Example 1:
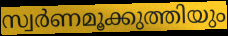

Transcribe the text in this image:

സ്വർണമൂക്കുത്തിയും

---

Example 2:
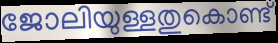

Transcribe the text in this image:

ജോലിയുള്ളതുകൊണ്ട്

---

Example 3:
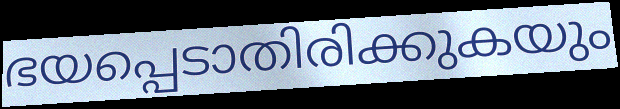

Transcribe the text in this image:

ഭയപ്പെടാതിരിക്കുകയും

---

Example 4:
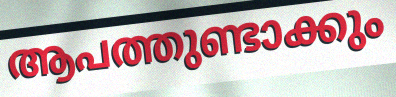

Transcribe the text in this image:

ആപത്തുണ്ടാക്കും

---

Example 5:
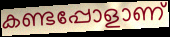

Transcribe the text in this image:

കണ്ടപ്പോളാണ്